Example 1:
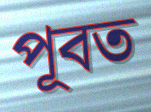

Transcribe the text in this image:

পূবত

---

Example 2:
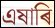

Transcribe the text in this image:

এষাৰি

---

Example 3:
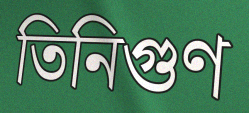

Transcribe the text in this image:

তিনিগুণ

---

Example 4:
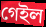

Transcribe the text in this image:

গেইল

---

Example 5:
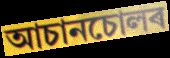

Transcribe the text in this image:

আচানচোলৰ